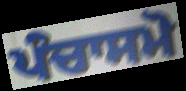
ਪੰਚਾਸਮੋ